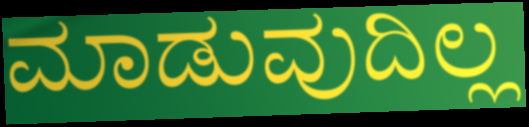
ಮಾಡುವುದಿಲ್ಲ